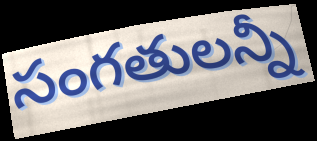
సంగతులన్నీ